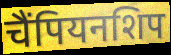
चैंपियनशिप